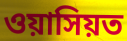
ওয়াসিয়ত